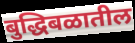
बुद्धिबळातील